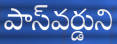
పాస్‌వర్డుని